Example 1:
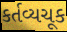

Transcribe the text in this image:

કર્તવ્યચૂક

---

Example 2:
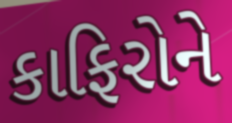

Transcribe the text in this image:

કાફિરોને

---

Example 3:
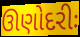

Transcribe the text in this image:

ઊણોદરીઃ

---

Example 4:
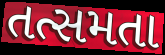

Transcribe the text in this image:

તત્સમતા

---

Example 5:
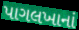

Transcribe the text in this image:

પાગલખાનાં